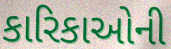
કારિકાઓની